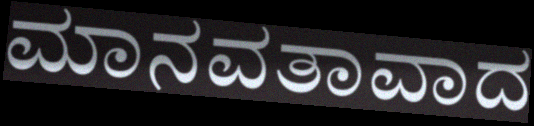
ಮಾನವತಾವಾದ